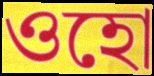
ওহো